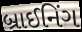
બ્રાઈનિંગ